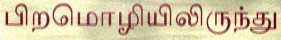
பிறமொழியிலிருந்து